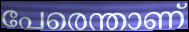
പേരെന്താണ്